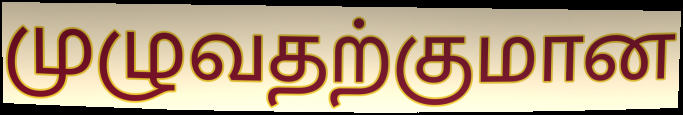
முழுவதற்குமான